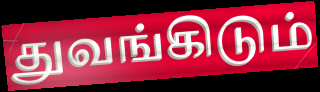
துவங்கிடும்